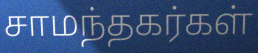
சாமந்தகர்கள்